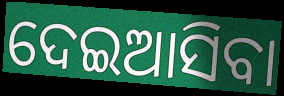
ଦେଇଆସିବା